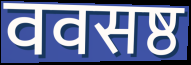
ववसष्ठ